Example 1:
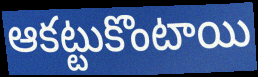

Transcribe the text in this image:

ఆకట్టుకొంటాయి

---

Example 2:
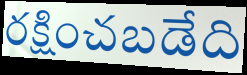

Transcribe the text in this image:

రక్షించబడేది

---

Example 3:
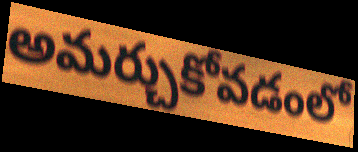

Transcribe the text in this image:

అమర్చుకోవడంలో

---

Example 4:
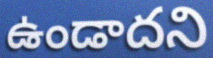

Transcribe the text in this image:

ఉండాదని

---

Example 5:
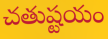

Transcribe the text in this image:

చతుష్టయం